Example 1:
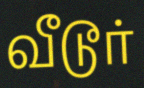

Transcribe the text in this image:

வீடூர்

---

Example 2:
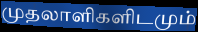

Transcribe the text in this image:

முதலாளிகளிடமும்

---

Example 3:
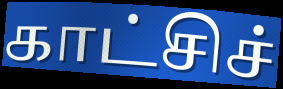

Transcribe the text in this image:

காட்சிச்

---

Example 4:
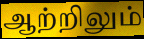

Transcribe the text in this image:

ஆற்றிலும்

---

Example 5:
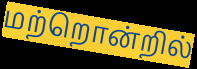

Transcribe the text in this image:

மற்றொன்றில்